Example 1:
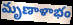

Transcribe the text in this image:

మృణాళాభం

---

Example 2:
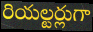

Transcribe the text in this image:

రియల్టర్లుగా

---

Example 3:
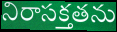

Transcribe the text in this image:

నిరాసక్తతను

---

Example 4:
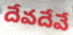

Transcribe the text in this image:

దేవదేవే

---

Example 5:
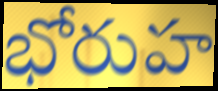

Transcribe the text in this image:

భోరుహ